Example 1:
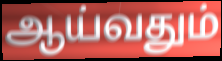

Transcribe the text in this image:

ஆய்வதும்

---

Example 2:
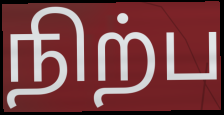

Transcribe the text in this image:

நிற்ப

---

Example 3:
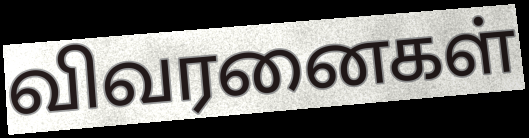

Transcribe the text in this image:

விவரனைகள்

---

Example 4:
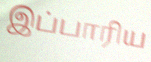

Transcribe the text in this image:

இப்பாரிய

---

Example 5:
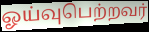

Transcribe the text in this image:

ஓய்வுபெற்றவர்